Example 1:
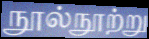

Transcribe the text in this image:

நூல்நூற்று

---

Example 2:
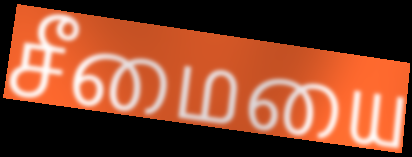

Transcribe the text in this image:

சீமையை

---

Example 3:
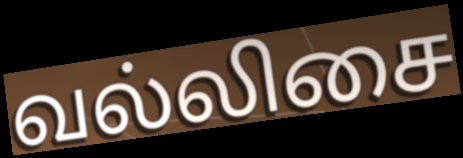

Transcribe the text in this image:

வல்லிசை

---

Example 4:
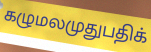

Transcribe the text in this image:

கழுமலமுதுபதிக்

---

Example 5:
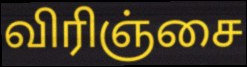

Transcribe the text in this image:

விரிஞ்சை